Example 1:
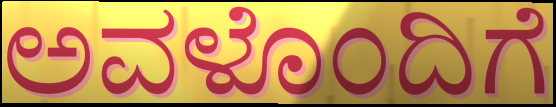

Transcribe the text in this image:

ಅವಳೊಂದಿಗೆ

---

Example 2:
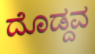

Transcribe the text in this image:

ದೊಡ್ದವ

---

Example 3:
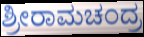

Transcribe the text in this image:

ಶ್ರೀರಾಮಚಂದ್ರ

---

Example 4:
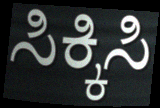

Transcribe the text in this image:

ಸಿಕ್ಕಿಸಿ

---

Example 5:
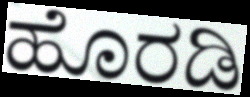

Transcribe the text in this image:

ಹೊರಡಿ